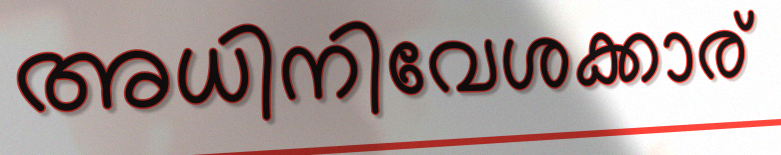
അധിനിവേശക്കാര്